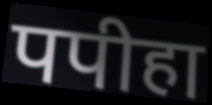
पपीहा